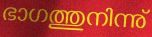
ഭാഗത്തുനിന്നു്